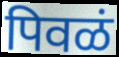
पिवळं